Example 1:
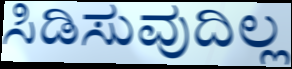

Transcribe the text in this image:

ಸಿಡಿಸುವುದಿಲ್ಲ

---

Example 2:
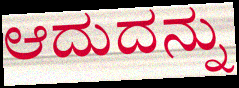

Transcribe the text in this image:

ಆದುದನ್ನು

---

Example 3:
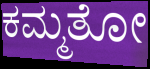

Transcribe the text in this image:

ಕಮ್ಮತೋ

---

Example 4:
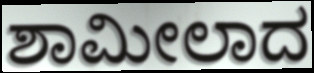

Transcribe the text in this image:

ಶಾಮೀಲಾದ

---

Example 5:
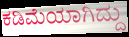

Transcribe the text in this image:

ಕಡಿಮೆಯಾಗಿದ್ದು